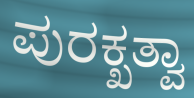
ಪುರಕ್ಖತ್ವಾ